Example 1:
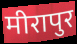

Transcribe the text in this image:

मीरापुर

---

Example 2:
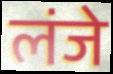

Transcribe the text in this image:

लंजे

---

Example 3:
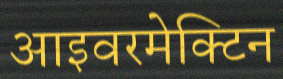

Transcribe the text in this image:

आइवरमेक्टिन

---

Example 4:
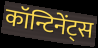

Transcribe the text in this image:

कॉन्टिनेंट्स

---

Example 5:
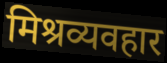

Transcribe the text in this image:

मिश्रव्यवहार